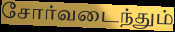
சோர்வடைந்தும்